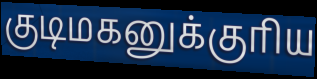
குடிமகனுக்குரிய